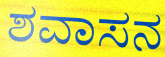
ಶವಾಸನ